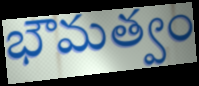
భౌమత్వం